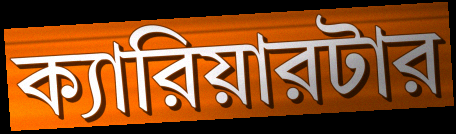
ক্যারিয়ারটার